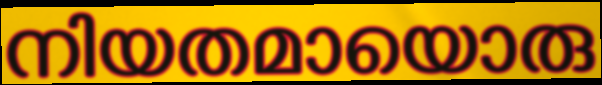
നിയതമായൊരു